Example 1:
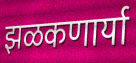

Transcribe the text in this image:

झळकणार्या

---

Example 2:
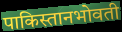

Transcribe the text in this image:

पाकिस्तानभोवती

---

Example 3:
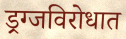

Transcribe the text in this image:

ड्रग्जविरोधात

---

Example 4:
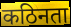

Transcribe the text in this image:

कठिनता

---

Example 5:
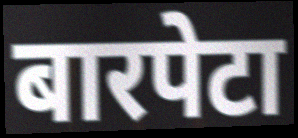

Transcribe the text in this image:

बारपेटा